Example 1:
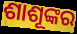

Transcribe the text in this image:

ଶାଶୂଙ୍କର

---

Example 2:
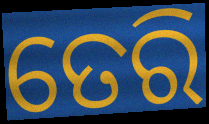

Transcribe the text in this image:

ତେରି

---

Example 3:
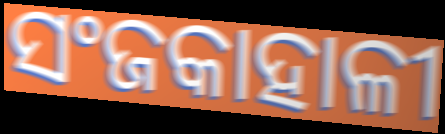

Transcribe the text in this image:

ସଂଜକାହାଳୀ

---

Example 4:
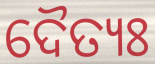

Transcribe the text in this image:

ଦୈତ୍ୟଃ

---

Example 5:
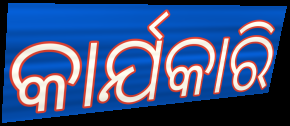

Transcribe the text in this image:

କାର୍ଯକାରି